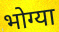
भोग्या